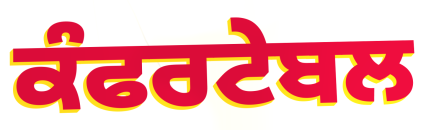
ਕੰਫਰਟੇਬਲ